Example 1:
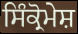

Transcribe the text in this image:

ਸਿੰਕ੍ਰੋਮੇਸ਼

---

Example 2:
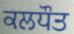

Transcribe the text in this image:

ਕਲਧੌਤ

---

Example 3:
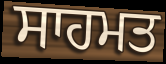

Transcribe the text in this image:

ਸਾਹਮਤ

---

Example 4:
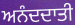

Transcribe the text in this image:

ਅਨੰਦਦਾਤੀ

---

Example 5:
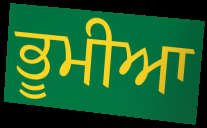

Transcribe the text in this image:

ਭੂਮੀਆ